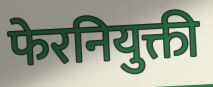
फेरनियुक्ती